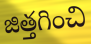
జిత్తగించి